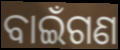
ବାଇଁଗଣ